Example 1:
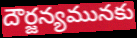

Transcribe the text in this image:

దౌర్జన్యమునకు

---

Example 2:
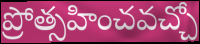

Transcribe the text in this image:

ప్రోత్సహించవచ్చో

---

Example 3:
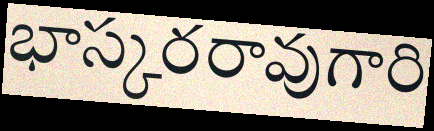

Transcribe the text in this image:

భాస్కరరావుగారి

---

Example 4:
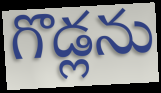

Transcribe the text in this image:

గొడ్లను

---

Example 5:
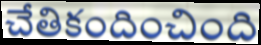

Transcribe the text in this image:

చేతికందించింది